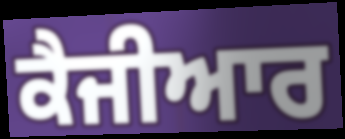
ਕੈਜੀਆਰ